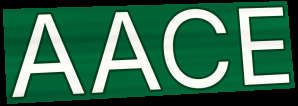
AACE